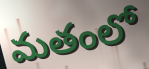
మతంలో